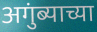
अगुंब्याच्या